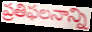
ప్రతిఫలనాన్ని